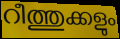
റീത്തുക്കളും